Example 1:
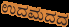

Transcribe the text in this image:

ಉದಮದದ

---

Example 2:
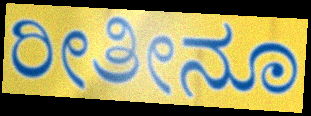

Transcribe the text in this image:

ರೀತೀನೂ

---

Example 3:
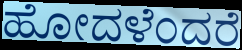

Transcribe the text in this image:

ಹೋದಳೆಂದರೆ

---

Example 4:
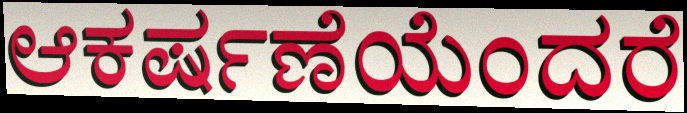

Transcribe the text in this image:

ಆಕರ್ಷಣೆಯೆಂದರೆ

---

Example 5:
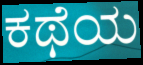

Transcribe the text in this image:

ಕಥೆಯ